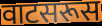
वाटसरूस